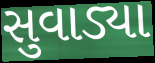
સુવાડ્યા